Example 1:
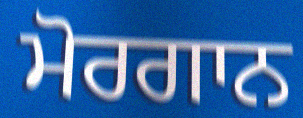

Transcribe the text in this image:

ਮੋਰਗਾਨ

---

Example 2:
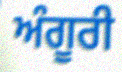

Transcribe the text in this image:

ਅੰਗੂਰੀ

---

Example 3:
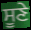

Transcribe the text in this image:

ਸੂਣੇ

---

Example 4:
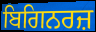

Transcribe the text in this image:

ਬਿਗਿਨਰਜ਼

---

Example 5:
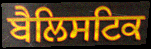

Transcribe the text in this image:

ਬੈਲਿਸਟਿਕ